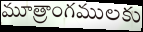
మూత్రాంగములకు